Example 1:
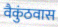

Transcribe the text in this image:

वैकुंठवास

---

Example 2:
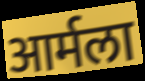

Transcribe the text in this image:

आर्मला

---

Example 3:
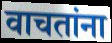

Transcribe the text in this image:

वाचतांना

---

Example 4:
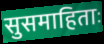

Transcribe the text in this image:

सुसमाहिताः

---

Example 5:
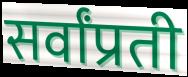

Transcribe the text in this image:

सर्वांप्रती